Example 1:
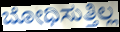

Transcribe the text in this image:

ಬೋಧಿಸುತ್ತಿಲ್ಲ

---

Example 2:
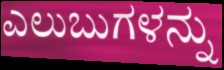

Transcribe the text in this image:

ಎಲುಬುಗಳನ್ನು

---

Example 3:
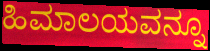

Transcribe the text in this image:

ಹಿಮಾಲಯವನ್ನೂ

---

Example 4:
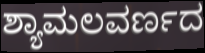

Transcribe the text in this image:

ಶ್ಯಾಮಲವರ್ಣದ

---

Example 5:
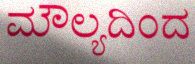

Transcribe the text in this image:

ಮೌಲ್ಯದಿಂದ